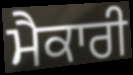
ਮੈਕਾਰੀ